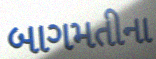
બાગમતીના